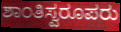
ಶಾಂತಿಸ್ವರೂಪರು